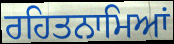
ਰਹਿਤਨਾਮਿਆਂ